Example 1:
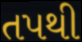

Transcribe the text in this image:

તપથી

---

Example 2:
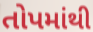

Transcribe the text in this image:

તોપમાંથી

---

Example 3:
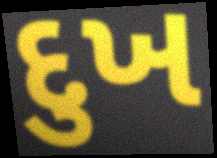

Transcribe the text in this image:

દુખ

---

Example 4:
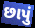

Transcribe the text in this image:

છાપું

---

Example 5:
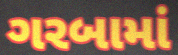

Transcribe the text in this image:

ગરબામાં